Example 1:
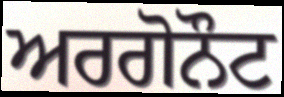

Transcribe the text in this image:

ਅਰਗੋਨੌਟ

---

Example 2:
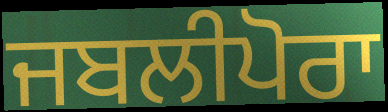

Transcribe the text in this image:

ਜਬਲੀਪੋਰਾ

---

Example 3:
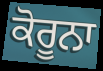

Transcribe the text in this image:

ਕੋਰੂਨਾ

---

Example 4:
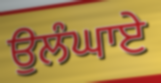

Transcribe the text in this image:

ਉਲੰਘਾਏ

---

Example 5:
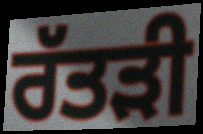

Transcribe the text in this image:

ਰੱਤੜੀ